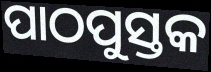
ପାଠପୁସ୍ତକ